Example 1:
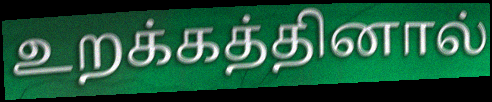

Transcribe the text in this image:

உறக்கத்தினால்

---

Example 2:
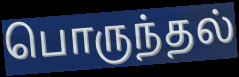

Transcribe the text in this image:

பொருந்தல்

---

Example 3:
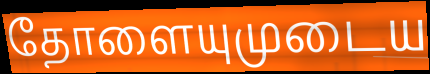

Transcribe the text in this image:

தோளையுமுடைய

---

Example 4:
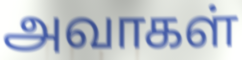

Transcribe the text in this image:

அவாகள்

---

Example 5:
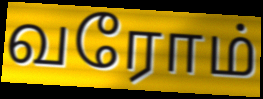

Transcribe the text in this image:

வரோம்